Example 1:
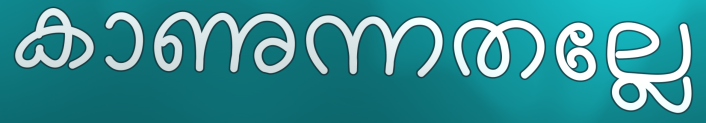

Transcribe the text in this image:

കാണുന്നതല്ലേ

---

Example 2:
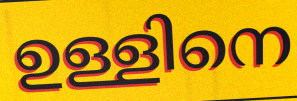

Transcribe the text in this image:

ഉള്ളിനെ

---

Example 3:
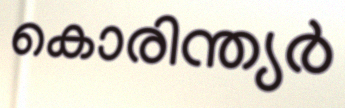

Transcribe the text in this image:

കൊരിന്ത്യർ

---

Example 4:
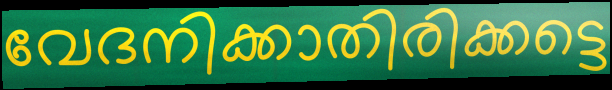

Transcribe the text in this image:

വേദനിക്കാതിരിക്കട്ടെ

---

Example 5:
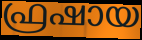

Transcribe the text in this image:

ഫ്രഷായ